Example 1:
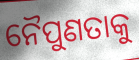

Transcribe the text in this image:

ନୈପୁଣତାକୁ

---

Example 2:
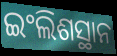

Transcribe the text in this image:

ଇଂଲିଶସ୍ଥାନ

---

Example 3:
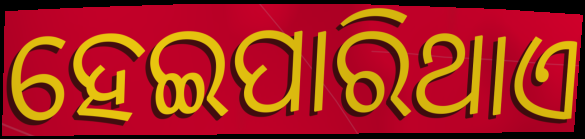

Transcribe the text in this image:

ହେଇପାରିଥାଏ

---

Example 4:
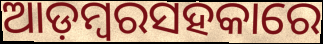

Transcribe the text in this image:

ଆଡ଼ମ୍ବରସହକାରେ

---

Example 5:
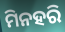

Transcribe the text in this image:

ମିନହରି